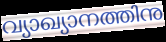
വ്യാഖ്യാനത്തിനു